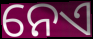
ନେଏ